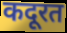
कदूरत